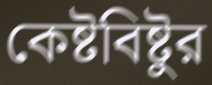
কেষ্টবিষ্টুর